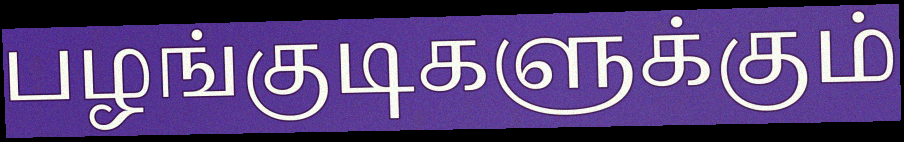
பழங்குடிகளுக்கும்